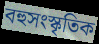
বহুসংস্কৃতিক